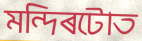
মন্দিৰটোত